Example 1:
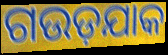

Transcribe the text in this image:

ଗଉଡ଼ଯାକ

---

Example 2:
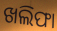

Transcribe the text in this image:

ଖଲିଫା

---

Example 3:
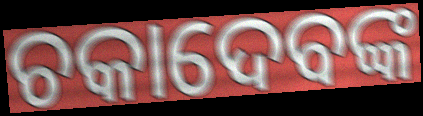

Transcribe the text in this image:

ଚକାଦେବଙ୍କ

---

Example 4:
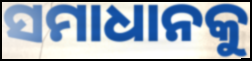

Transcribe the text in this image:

ସମାଧାନକୁ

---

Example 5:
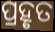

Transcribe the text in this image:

ପ୍ରହୃତ